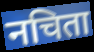
नचिता